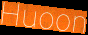
Huoon